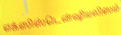
எக்ஸிஸ்டென்ஷியலிஸம்